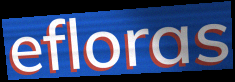
efloras